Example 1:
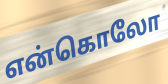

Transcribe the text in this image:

என்கொலோ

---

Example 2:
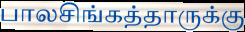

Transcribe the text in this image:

பாலசிங்கத்தாருக்கு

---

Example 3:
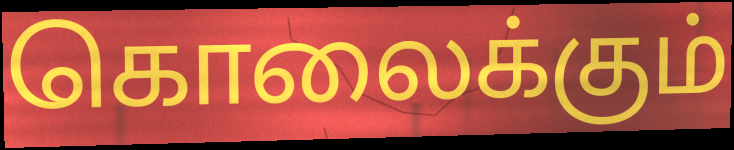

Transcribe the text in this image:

கொலைக்கும்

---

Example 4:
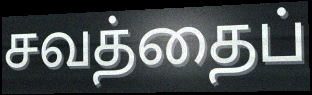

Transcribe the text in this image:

சவத்தைப்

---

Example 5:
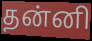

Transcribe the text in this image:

தன்னி